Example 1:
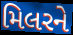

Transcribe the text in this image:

મિલરને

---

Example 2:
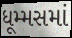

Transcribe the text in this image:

ધૂમ્મસમાં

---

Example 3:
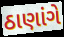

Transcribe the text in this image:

ઠાણાંગે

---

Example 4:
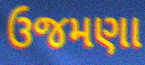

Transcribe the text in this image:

ઉજમણા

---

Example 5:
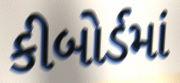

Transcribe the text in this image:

કીબોર્ડમાં